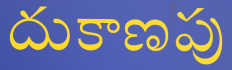
దుకాణపు